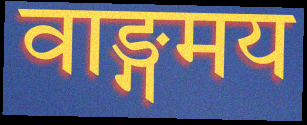
वाङ्गमय